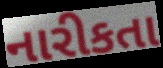
નારીકતા